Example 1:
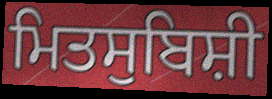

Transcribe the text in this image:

ਮਿਤਸੁਬਿਸ਼ੀ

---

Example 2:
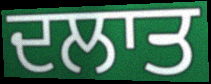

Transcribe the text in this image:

ਦਲਾਤ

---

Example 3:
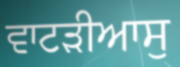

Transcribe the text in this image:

ਵਾਟੜੀਆਸੁ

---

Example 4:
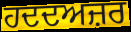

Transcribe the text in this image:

ਹਦਦਅਜ਼ਰ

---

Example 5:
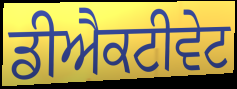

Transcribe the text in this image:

ਡੀਐਕਟੀਵੇਟ